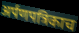
अर्पणपत्रिकाच